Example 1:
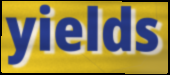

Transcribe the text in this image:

yields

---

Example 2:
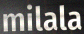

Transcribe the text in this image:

milala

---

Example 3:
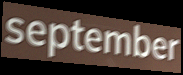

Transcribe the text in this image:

september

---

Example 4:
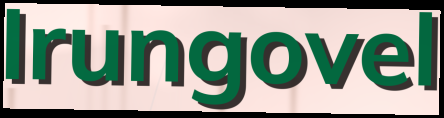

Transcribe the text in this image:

Irungovel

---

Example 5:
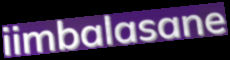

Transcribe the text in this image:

iimbalasane